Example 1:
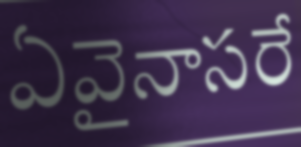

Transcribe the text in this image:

ఏవైనాసరే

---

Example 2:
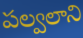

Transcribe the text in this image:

పల్వలాని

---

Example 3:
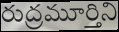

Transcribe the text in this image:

రుద్రమూర్తిని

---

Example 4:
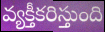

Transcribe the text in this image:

వ్యక్తీకరిస్తుంది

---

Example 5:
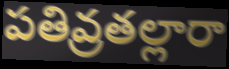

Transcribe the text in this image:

పతివ్రతల్లారా